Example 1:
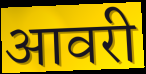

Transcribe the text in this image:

आवरी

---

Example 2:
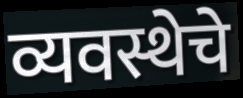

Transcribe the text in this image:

व्यवस्थेचे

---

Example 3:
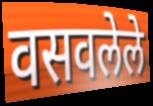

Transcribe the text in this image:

वसवलेले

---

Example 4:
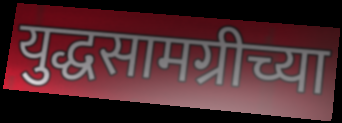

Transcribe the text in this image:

युद्धसामग्रीच्या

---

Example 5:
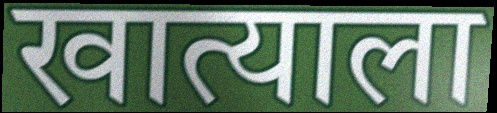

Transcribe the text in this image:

खात्याला